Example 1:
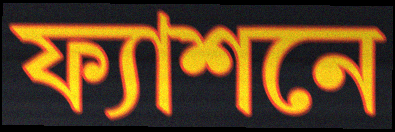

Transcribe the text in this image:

ফ্যাশনে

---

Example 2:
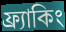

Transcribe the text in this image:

ফ্র্যাকিং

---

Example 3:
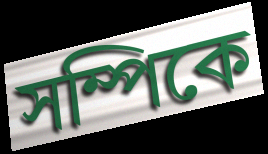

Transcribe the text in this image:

সম্পিকে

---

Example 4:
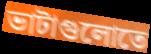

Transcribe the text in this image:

ভাটাগুলোতে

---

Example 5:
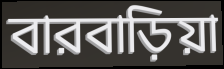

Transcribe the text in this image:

বারবাড়িয়া